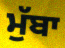
ਮੁੱਬਾ